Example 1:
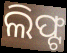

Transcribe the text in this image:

ଲିଫ୍ଟ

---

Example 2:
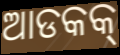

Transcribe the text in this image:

ଆଡକକ୍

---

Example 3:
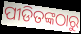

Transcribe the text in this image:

ପୀଡିତଙ୍କଠାରୁ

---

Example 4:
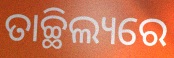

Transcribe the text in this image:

ତାଚ୍ଛିଲ୍ୟରେ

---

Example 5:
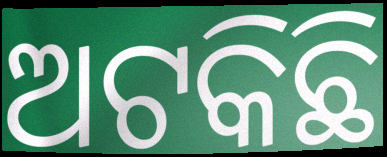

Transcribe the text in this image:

ଅଟକିଛି